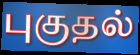
புகுதல்